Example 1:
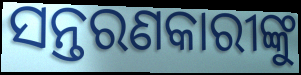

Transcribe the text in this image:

ସନ୍ତରଣକାରୀଙ୍କୁ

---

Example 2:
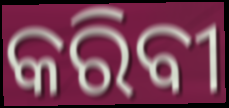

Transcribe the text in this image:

କରିବୀ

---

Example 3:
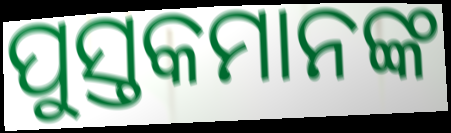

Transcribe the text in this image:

ପୁସ୍ତକମାନଙ୍କ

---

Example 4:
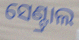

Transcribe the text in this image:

ସେଣ୍ଟ୍ରାଲ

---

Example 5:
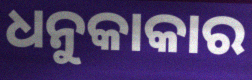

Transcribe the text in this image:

ଧନୁକାକାର